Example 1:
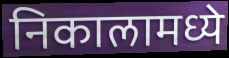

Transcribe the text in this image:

निकालामध्ये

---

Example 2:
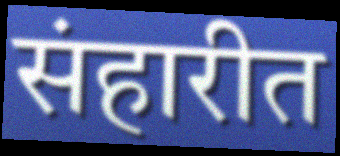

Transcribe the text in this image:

संहारीत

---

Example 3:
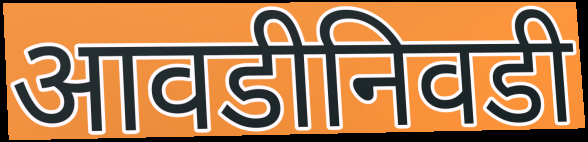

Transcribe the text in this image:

आवडीनिवडी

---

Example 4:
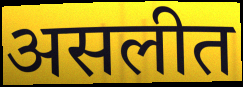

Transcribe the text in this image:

असलीत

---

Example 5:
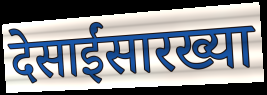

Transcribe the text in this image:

देसाईंसारख्या